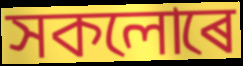
সকলোৰে